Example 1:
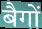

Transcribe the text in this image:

बैगों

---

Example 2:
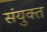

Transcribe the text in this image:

संयुक्त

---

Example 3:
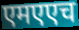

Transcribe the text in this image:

एमएएच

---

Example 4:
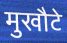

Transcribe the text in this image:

मुखौटे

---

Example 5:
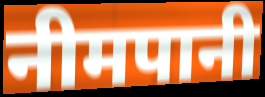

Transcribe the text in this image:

नीमपानी